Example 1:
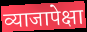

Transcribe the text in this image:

व्याजापेक्षा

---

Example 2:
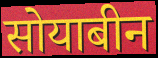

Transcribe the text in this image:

सोयाबीन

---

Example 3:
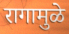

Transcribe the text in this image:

रागामुळे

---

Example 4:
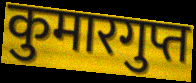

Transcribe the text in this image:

कुमारगुप्त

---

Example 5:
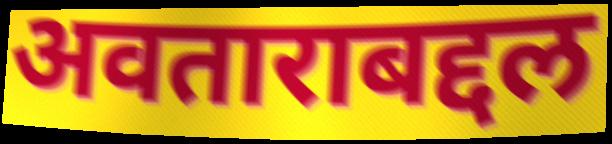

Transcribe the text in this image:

अवताराबद्दल